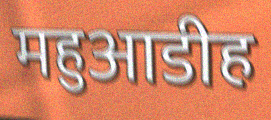
महुआडीह